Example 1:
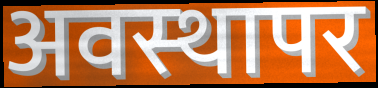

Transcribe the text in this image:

अवस्थापर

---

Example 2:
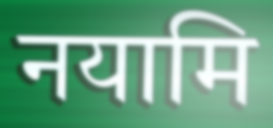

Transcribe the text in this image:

नयामि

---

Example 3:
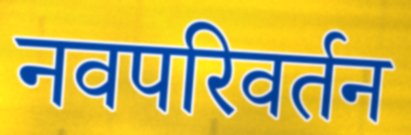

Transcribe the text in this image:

नवपरिवर्तन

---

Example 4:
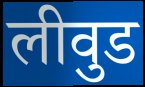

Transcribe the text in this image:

लीवुड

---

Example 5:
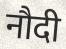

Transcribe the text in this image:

नौदी